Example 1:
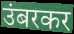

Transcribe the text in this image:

उंबरकर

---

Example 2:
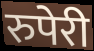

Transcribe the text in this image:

रुपेरी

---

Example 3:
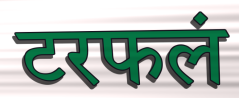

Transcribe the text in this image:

टरफलं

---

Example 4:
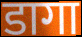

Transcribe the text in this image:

डागा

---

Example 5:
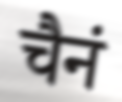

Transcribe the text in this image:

चैनं